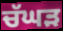
ਚੱਘੜ